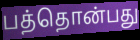
பத்தொன்பது